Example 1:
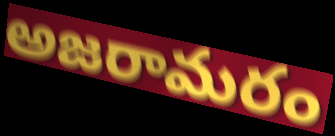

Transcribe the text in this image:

అజరామరం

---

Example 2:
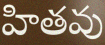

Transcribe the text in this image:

హితవు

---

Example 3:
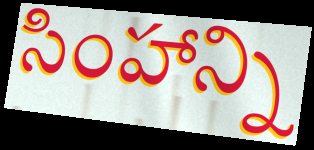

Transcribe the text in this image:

సింహాన్ని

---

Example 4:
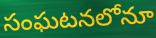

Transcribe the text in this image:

సంఘటనలోనూ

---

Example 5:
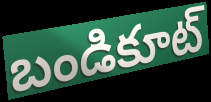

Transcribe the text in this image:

బండికూట్